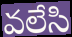
వలేసి